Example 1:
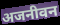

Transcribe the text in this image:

अजनीवन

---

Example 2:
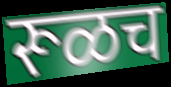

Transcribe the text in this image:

रूळच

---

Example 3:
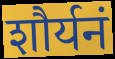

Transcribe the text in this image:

शौर्यनं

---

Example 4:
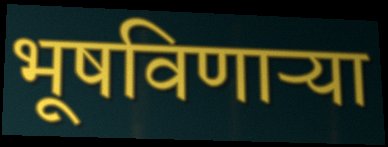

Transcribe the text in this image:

भूषविणाऱ्या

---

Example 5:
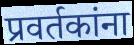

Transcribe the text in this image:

प्रवर्तकांना